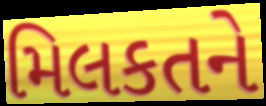
મિલકતને